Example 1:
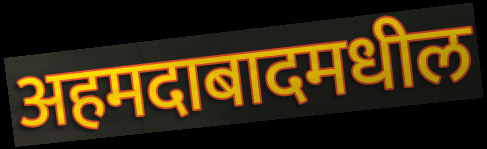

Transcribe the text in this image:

अहमदाबादमधील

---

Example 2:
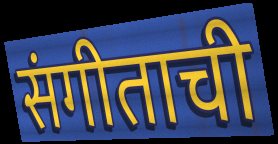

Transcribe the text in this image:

संगीताची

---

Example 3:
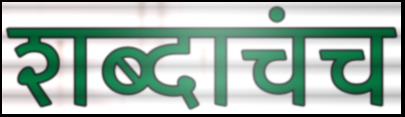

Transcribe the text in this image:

शब्दाचंच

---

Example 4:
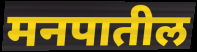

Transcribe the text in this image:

मनपातील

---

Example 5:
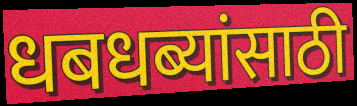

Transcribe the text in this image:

धबधब्यांसाठी